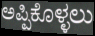
ಅಪ್ಪಿಕೊಳ್ಳಲು